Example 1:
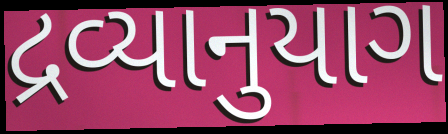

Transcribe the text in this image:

દ્રવ્યાનુયાગ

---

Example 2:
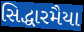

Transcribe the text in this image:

સિદ્ધારમૈયા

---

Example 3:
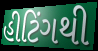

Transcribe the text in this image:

હીટિંગથી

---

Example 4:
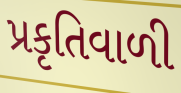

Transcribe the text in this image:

પ્રકૃતિવાળી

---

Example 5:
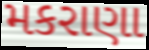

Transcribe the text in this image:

મકરાણા